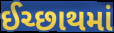
ઈચ્છાથમાં